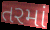
તરમાં